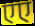
एए